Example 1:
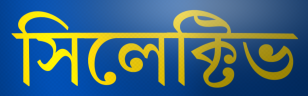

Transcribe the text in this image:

সিলেক্টিভ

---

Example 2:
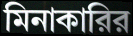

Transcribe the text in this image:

মিনাকারির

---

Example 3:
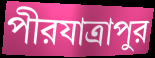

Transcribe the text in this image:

পীরযাত্রাপুর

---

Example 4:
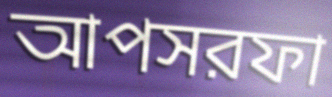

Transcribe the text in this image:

আপসরফা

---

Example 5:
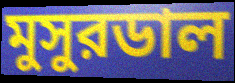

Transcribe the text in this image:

মুসুরডাল